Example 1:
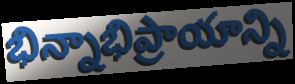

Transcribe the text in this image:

భిన్నాభిప్రాయాన్ని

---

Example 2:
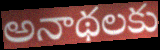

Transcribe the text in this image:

అనాథలకు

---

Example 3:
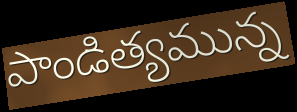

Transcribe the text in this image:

పాండిత్యమున్న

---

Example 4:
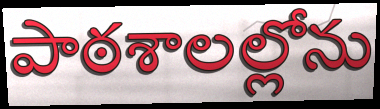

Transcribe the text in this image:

పాఠశాలల్లోను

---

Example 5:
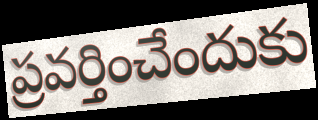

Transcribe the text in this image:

ప్రవర్తించేందుకు